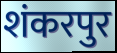
शंकरपुर